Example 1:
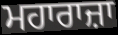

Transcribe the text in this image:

ਮਹਾਰਾਜ਼ਾ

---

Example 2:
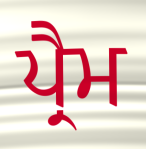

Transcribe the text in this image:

ਪ੍ਰੈਮ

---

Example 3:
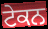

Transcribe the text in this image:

ਟੇਕਨ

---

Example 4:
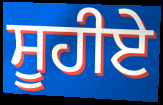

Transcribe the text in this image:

ਸੂਹੀਏ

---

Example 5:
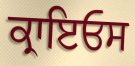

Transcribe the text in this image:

ਕ੍ਰਾਇਓਸ